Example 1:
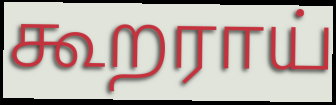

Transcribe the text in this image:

கூறராய்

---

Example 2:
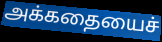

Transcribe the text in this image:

அக்கதையைச்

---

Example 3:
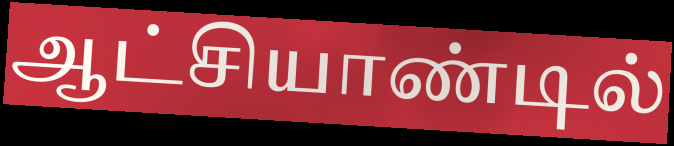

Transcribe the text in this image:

ஆட்சியாண்டில்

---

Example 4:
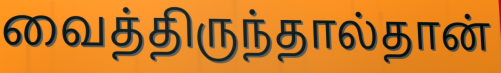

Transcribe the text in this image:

வைத்திருந்தால்தான்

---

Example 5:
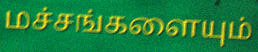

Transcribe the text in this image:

மச்சங்களையும்